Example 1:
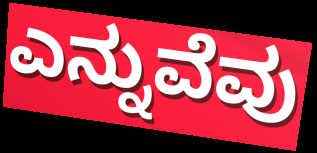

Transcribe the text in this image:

ಎನ್ನುವೆವು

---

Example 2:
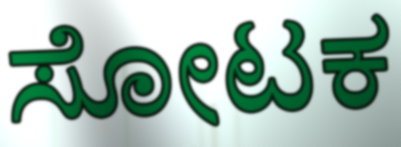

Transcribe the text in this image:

ಸೋಟಕ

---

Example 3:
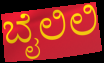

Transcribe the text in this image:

ಬೈಲಿಲಿ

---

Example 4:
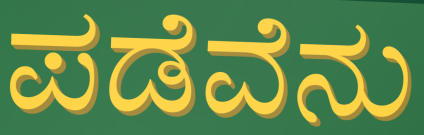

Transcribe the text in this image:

ಪಡೆವೆನು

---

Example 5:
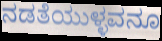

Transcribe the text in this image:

ನಡತೆಯುಳ್ಳವನೂ